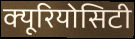
क्यूरियोसिटी